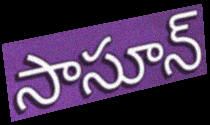
సాసూన్